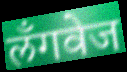
लॅंगवेज